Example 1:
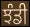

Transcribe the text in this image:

ਝੰਡੀ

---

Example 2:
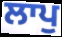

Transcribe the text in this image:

ਲਾਪੁ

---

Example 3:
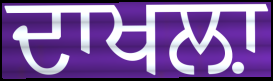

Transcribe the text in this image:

ਦਾਖਲ਼ਾ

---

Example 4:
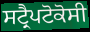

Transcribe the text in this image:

ਸਟ੍ਰੈਪਟੋਕੋਸੀ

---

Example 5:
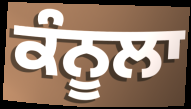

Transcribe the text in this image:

ਕੰਨੂਲਾ